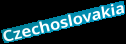
Czechoslovakia